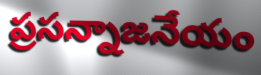
ప్రసన్నాజనేయం